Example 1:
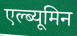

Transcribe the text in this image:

एल्ब्यूमिन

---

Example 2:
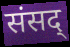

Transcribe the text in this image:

संसद्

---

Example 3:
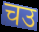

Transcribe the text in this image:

चउ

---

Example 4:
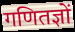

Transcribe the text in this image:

गणितज्ञों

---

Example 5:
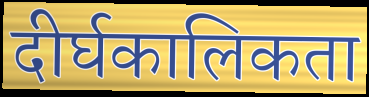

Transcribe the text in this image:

दीर्घकालिकता